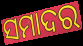
ସମାଦର